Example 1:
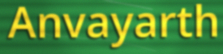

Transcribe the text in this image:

Anvayarth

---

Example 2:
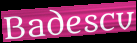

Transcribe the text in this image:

Badescu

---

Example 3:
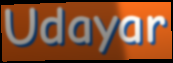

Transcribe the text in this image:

Udayar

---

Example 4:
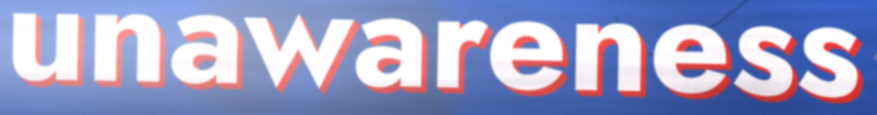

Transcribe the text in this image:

unawareness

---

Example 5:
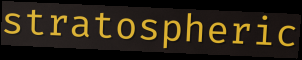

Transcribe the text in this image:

stratospheric